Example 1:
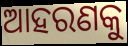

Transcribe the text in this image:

ଆହରଣକୁ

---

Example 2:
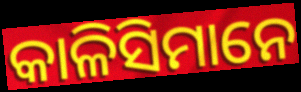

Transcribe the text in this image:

କାଳିସିମାନେ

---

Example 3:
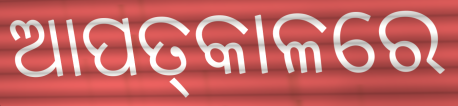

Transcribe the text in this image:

ଆପତ୍‌କାଳରେ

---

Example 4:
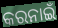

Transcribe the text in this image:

କରନାଇଁ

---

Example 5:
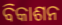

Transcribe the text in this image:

ବିକାଶନ